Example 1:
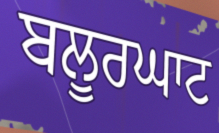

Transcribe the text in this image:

ਬਲੂਰਘਾਟ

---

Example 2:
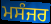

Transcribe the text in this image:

ਮਸੰਜਰ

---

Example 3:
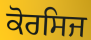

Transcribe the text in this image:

ਕੋਰਸਿਜ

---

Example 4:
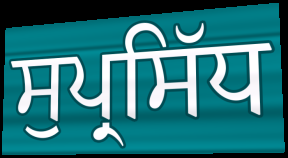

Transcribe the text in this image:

ਸੁਪ੍ਰਸਿੱਧ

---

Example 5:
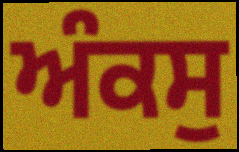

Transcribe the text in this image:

ਅੰਕਸੁ